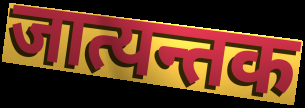
जात्यन्तक